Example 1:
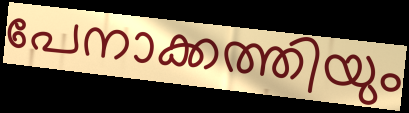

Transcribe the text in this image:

പേനാക്കത്തിയും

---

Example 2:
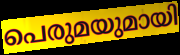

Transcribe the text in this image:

പെരുമയുമായി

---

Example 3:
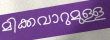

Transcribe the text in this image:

മിക്കവാറുമുള്ള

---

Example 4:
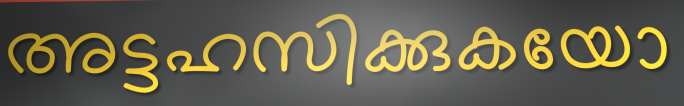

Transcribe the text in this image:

അട്ടഹസിക്കുകയോ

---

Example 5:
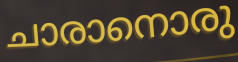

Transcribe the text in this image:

ചാരാനൊരു